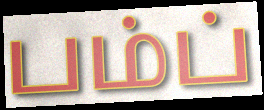
பம்ப்